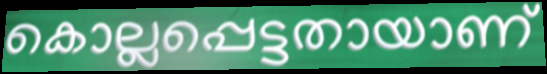
കൊല്ലപ്പെട്ടതായാണ്